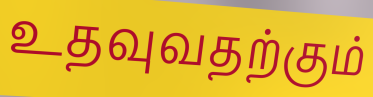
உதவுவதற்கும்